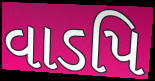
વાઽપિ